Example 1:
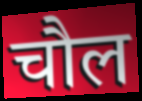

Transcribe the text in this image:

चौल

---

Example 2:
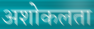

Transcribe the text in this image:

अशोकलता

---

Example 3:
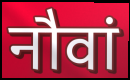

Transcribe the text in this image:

नौवां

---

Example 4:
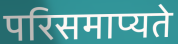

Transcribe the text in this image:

परिसमाप्यते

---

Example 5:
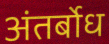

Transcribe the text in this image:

अंतर्बोध